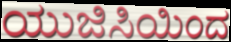
ಯುಜಿಸಿಯಿಂದ